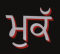
ਮੁਕੱ